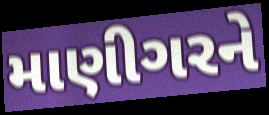
માણીગરને